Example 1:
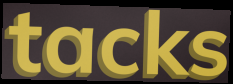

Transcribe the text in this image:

tacks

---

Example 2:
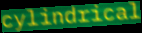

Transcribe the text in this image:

cylindrical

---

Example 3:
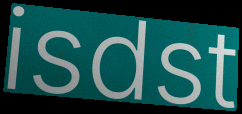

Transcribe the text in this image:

isdst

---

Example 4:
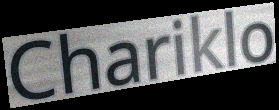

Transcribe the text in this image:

Chariklo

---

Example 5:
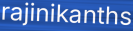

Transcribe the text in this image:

rajinikanths